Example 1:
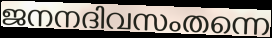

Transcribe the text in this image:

ജനനദിവസംതന്നെ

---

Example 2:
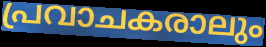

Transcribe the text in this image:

പ്രവാചകരാലും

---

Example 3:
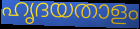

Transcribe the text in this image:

ഹൃദയതാളം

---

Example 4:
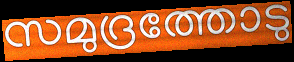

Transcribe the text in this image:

സമുദ്രത്തോടു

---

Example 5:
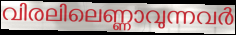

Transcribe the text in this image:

വിരലിലെണ്ണാവുന്നവർ